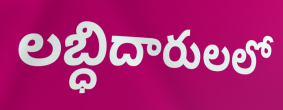
లబ్ధిదారులలో